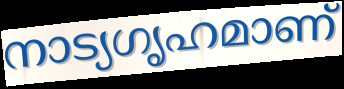
നാട്യഗൃഹമാണ്